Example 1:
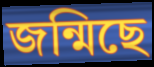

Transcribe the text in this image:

জন্মিছে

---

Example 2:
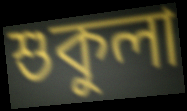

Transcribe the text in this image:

শুকুলা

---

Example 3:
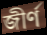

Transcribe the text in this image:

জীৰ্ণ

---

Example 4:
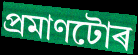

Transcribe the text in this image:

প্ৰমাণটোৰ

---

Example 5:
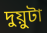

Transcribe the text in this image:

দুয়ুটা